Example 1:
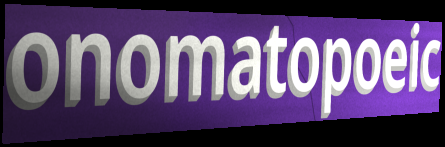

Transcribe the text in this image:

onomatopoeic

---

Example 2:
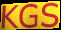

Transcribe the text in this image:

KGS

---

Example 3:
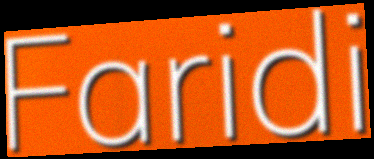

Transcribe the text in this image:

Faridi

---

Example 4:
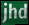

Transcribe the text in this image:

jhd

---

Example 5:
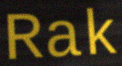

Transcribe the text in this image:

Rak